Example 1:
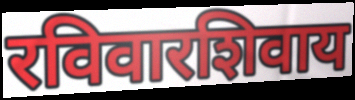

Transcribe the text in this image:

रविवारशिवाय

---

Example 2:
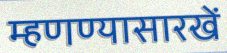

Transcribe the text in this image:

म्हणण्यासारखें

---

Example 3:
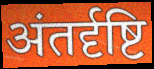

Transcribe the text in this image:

अंतर्दृष्टि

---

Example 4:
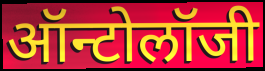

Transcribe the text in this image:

ऑन्टोलॉजी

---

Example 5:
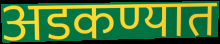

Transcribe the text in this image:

अडकण्यात